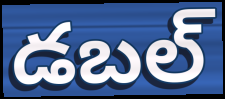
డబల్